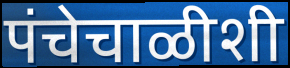
पंचेचाळीशी